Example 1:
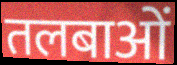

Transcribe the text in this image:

तलबाओं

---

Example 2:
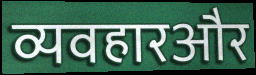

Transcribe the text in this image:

व्यवहारऔर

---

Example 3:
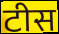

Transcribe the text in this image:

टीस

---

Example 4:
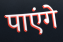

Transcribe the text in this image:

पाएंगे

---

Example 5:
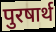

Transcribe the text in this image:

पुरषार्थ